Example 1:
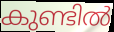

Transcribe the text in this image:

കുണ്ടിൽ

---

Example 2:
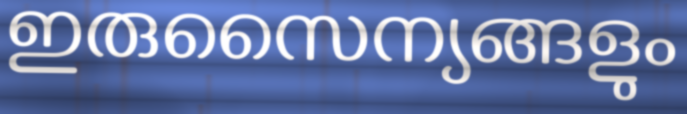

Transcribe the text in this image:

ഇരുസൈന്യങ്ങളും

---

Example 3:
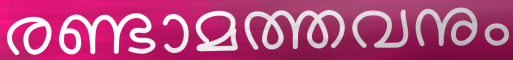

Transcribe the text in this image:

രണ്ടാമത്തവനും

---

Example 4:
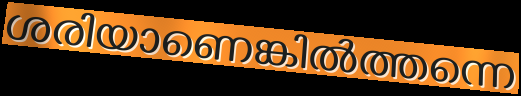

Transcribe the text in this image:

ശരിയാണെങ്കിൽത്തന്നെ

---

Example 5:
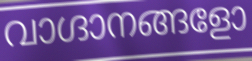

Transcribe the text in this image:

വാഗ്ദാനങ്ങളോ